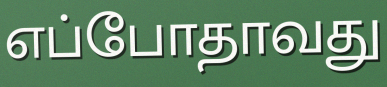
எப்போதாவது